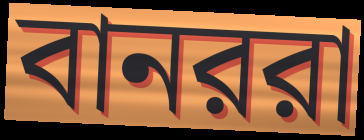
বানররা